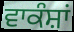
ਵਾਕੰਸ਼ਾਂ